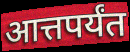
आत्तपर्यंत